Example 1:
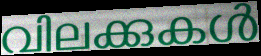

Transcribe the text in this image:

വിലക്കുകൾ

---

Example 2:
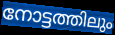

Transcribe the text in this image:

നോട്ടത്തിലും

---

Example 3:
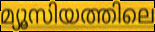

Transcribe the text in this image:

മ്യൂസിയത്തിലെ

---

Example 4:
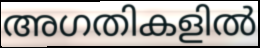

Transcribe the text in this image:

അഗതികളിൽ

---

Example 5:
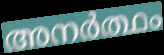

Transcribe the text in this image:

അനർത്ഥം